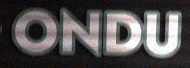
ONDU